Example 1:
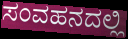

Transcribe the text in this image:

ಸಂವಹನದಲ್ಲಿ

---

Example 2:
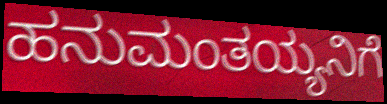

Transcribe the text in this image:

ಹನುಮಂತಯ್ಯನಿಗೆ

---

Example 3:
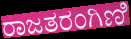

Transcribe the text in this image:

ರಾಜತರಂಗಿಣಿ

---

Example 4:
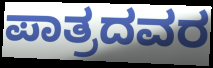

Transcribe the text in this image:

ಪಾತ್ರದವರ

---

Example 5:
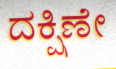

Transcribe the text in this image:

ದಕ್ಷಿಣೇ